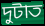
দুটাত